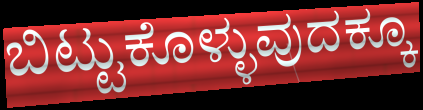
ಬಿಟ್ಟುಕೊಳ್ಳುವುದಕ್ಕೂ